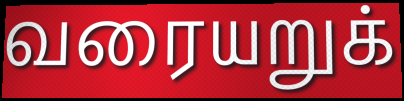
வரையறுக்